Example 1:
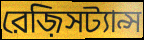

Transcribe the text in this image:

রেজ়িসট্যান্স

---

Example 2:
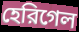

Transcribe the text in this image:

হেরিগেল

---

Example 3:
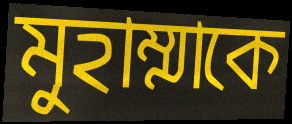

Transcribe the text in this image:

মুহাম্মাকে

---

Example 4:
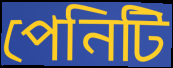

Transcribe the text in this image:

পেনিটি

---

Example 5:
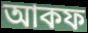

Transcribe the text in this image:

আকফ